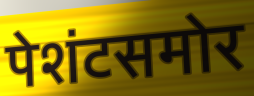
पेशंटसमोर